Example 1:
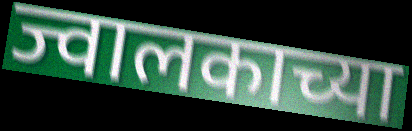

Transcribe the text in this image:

ज्वालकाच्या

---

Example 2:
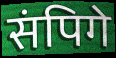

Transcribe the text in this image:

संपिगे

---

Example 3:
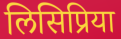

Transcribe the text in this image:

लिसिप्रिया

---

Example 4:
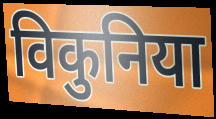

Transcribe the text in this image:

विकुनिया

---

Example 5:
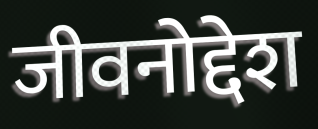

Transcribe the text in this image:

जीवनोद्देश